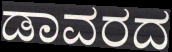
ಡಾವರದ